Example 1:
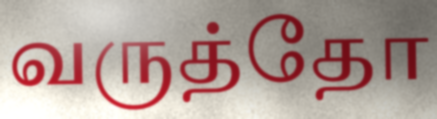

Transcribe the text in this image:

வருத்தோ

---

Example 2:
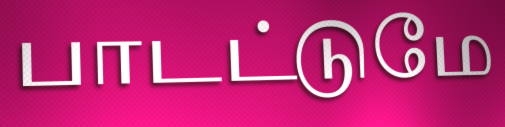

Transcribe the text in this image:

பாடட்டுமே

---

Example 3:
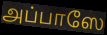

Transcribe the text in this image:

அப்பாஸே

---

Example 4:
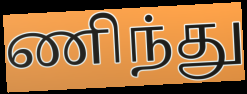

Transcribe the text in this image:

ணிந்து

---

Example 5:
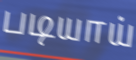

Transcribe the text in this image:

படியாய்